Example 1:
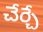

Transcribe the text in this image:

చేర్చే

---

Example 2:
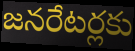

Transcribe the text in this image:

జనరేటర్లకు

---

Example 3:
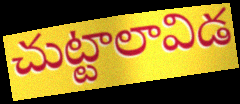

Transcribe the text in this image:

చుట్టాలావిడ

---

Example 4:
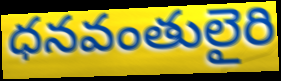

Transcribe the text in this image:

ధనవంతులైరి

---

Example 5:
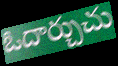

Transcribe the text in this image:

ఓదార్చుచు